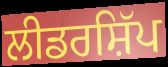
ਲੀਡਰਸ਼ਿੱਪ